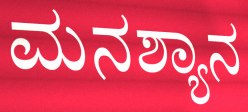
ಮನಶ್ಯಾನ